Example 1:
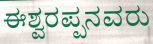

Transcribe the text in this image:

ಈಶ್ವರಪ್ಪನವರು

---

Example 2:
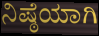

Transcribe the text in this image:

ನಿಷ್ಠೆಯಾಗಿ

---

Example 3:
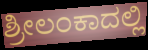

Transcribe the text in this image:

ಶ್ರೀಲಂಕಾದಲ್ಲಿ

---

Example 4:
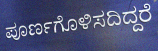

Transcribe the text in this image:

ಪೂರ್ಣಗೊಳಿಸದಿದ್ದರೆ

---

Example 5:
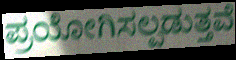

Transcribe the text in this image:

ಪ್ರಯೋಗಿಸಲ್ಪಡುತ್ತವೆ